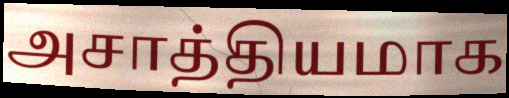
அசாத்தியமாக